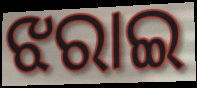
ଝରାଇ